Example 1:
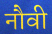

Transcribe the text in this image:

नौवी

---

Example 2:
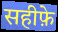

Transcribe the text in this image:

सहीफ़े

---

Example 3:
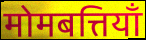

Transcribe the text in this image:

मोमबत्तियाँ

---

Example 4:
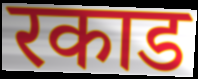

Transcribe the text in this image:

रकाड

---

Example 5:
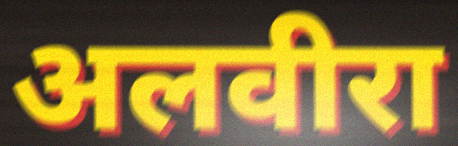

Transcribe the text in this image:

अलवीरा